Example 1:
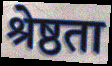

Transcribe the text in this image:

श्रेष्ठता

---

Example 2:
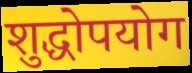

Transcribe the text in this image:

शुद्धोपयोग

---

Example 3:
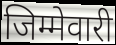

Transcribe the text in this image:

जिम्मेवारी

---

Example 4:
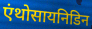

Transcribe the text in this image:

एंथोसायनिडिन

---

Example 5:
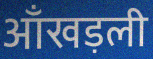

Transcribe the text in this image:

आँखड़ली